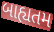
બાહ્યતમ